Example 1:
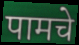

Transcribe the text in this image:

पामचे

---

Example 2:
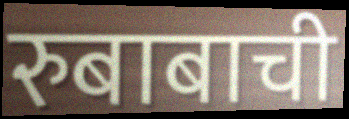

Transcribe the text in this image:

रुबाबाची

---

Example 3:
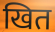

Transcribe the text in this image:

खित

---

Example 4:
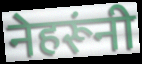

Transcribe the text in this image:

नेहरूंनी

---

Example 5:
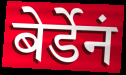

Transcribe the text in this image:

बेर्डेनं